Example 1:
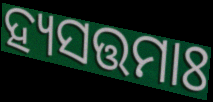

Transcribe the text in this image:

ହ୍ୟସତ୍ତମାଃ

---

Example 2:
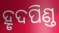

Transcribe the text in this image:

ହୃଦପିଣ୍ଡ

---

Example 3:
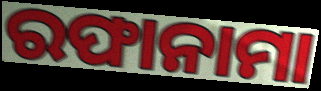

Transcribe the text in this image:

ରଫାନାମା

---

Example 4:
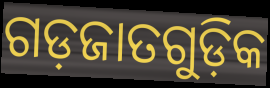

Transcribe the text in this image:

ଗଡ଼ଜାତଗୁଡ଼ିକ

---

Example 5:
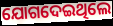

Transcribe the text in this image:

ଯୋଗଦେଇଥିଲେ